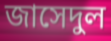
জাসেদুল